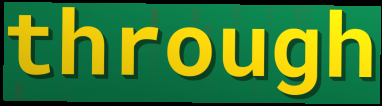
through